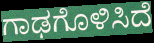
ಗಾಢಗೊಳಿಸಿದೆ